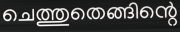
ചെത്തുതെങ്ങിന്റെ